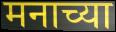
मनाच्‍या